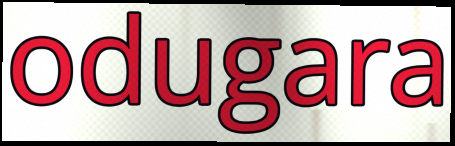
odugara